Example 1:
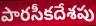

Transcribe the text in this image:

పారసీకదేశపు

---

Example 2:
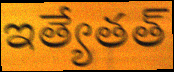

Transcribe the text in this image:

ఇత్యేతత్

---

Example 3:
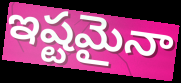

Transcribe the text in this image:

ఇష్టమైనా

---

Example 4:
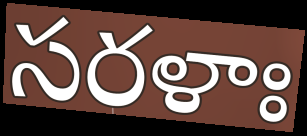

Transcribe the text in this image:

సరళాః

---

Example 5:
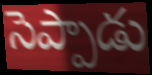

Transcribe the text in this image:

సెప్పాడు